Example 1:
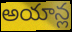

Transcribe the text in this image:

అయాన్ల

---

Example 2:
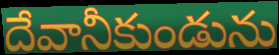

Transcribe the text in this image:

దేవానీకుండును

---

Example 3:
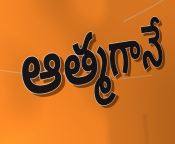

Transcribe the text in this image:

ఆత్మగానే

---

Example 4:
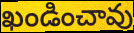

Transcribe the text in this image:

ఖండించావు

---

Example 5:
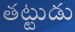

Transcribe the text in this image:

తట్టుడు